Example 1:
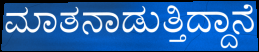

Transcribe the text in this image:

ಮಾತನಾಡುತ್ತಿದ್ದಾನೆ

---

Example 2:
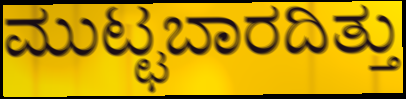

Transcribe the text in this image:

ಮುಟ್ಟಬಾರದಿತ್ತು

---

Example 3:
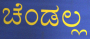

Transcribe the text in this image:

ಚೆಂಡಲ್ಲ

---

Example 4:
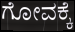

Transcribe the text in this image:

ಗೋವಕ್ಕೆ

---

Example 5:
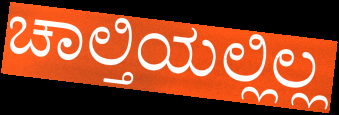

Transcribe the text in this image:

ಚಾಲ್ತಿಯಲ್ಲಿಲ್ಲ